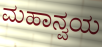
ಮಹಾನ್ವಯ